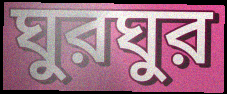
ঘুরঘুর